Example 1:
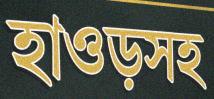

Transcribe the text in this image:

হাওড়সহ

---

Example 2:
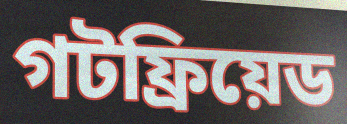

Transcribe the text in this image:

গটফ্রিয়েড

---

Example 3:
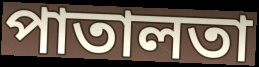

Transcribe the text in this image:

পাতালতা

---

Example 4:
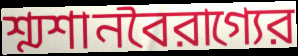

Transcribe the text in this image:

শ্মশানবৈরাগ্যের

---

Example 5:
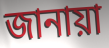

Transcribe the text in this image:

জানায়া